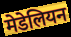
मेडेलियन